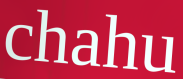
chahu